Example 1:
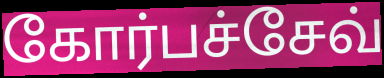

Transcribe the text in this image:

கோர்பச்சேவ்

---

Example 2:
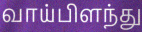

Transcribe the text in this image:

வாய்பிளந்து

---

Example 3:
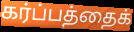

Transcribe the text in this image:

கர்ப்பத்தைக்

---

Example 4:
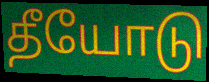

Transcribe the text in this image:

தீயோடு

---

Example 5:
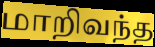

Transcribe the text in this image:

மாறிவந்த